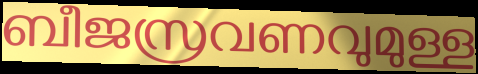
ബീജസ്രവണവുമുള്ള